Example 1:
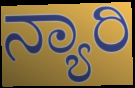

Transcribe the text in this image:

ನ್ಯಾರಿ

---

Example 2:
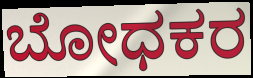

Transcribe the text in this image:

ಬೋಧಕರ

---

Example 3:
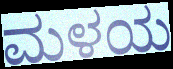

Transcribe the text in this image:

ಮಳಯ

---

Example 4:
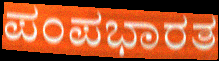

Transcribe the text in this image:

ಪಂಪಭಾರತ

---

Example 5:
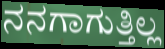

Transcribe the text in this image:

ನನಗಾಗುತ್ತಿಲ್ಲ